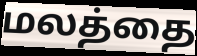
மலத்தை